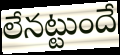
లేనట్టుందే